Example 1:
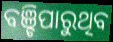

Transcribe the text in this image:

ବଞ୍ଚିପାରୁଥିବ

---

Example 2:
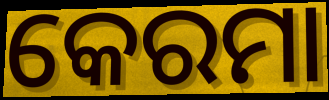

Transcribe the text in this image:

କେରମା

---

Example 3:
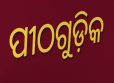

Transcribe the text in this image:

ପୀଠଗୁଡ଼ିକ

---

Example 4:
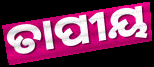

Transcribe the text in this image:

ତାପୀୟ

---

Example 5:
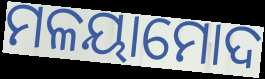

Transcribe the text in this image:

ମଳୟାମୋଦ